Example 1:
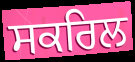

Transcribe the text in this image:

ਸਕਰਿਲ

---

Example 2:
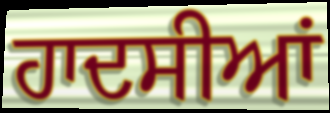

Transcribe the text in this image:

ਹਾਦਸੀਆਂ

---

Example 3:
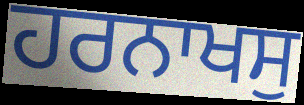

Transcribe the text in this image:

ਹਰਨਾਖਸੁ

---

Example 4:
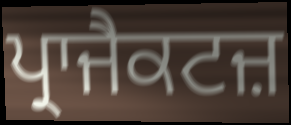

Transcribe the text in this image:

ਪ੍ਰਾਜੈਕਟਜ਼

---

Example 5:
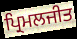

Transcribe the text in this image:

ਪ੍ਰਿਮਲਜੀਤ